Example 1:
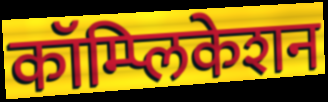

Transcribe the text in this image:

कॉम्प्लिकेशन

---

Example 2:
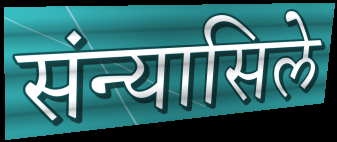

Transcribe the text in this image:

संन्यासिले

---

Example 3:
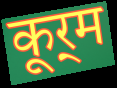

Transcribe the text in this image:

कूर्म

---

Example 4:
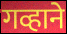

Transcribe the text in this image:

गव्हाने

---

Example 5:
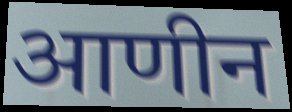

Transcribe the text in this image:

आणीन